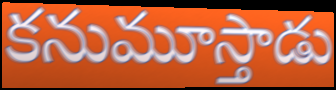
కనుమూస్తాడు